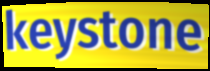
keystone